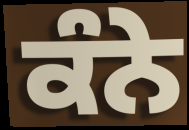
ਕੰਨੇ